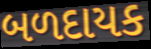
બળદાયક